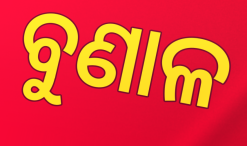
ବୁଣାଳ